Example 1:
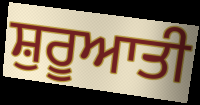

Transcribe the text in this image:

ਸ਼ੁਰੂਆਤੀ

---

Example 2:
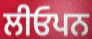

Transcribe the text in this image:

ਲੀਓਪਨ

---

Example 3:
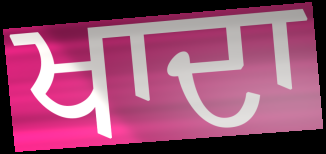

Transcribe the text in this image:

ਖਾਦਾ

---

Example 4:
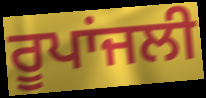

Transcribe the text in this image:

ਰੂਪਾਂਜਲੀ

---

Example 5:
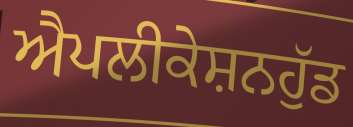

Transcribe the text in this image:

ਐਪਲੀਕੇਸ਼ਨਹੁੱਡ